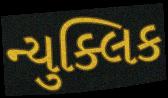
ન્યુક્લિક